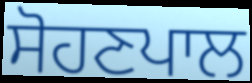
ਸੋਹਣਪਾਲ